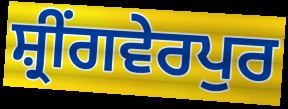
ਸ਼੍ਰੀਂਗਵੇਰਪੁਰ